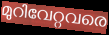
മുറിവേറ്റവരെ